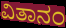
ವಿತಾನಂ